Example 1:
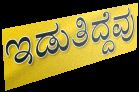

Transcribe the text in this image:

ಇಡುತಿದ್ದೆವು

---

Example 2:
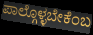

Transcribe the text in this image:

ಪಾಲ್ಗೊಳ್ಳಬೇಕೆಂಬ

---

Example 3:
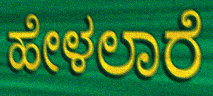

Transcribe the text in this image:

ಹೇಳಲಾರೆ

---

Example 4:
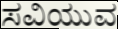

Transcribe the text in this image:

ಸವಿಯುವ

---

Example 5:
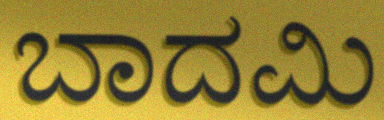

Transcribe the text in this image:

ಬಾದಮಿ